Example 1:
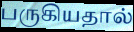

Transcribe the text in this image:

பருகியதால்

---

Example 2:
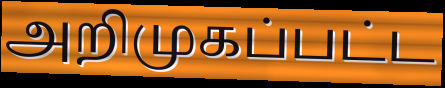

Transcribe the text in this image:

அறிமுகப்பட்ட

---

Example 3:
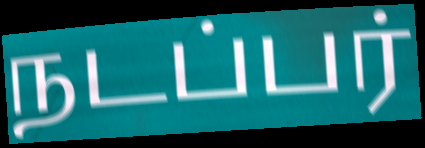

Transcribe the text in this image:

நடப்பர்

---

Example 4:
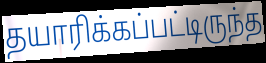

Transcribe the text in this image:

தயாரிக்கப்பட்டிருந்த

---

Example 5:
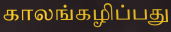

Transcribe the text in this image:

காலங்கழிப்பது